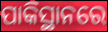
ପାକିସ୍ଥାନରେ